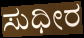
ಸುಧೀರ